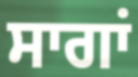
ਸਾਗਾਂ